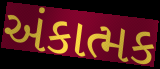
અંકાત્મક